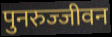
पुनरुज्‍जीवन